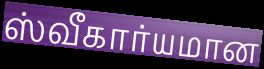
ஸ்வீகார்யமான